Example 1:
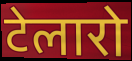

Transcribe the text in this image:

टेलारो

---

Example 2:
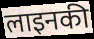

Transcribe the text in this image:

लाइनकी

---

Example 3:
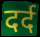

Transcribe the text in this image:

दर्द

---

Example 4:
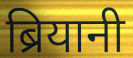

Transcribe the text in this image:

ब्रियानी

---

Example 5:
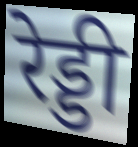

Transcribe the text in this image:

रेड्डी